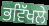
ਭਵਿੱਖਲੇ